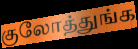
குலோத்துங்க